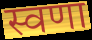
स्वणा